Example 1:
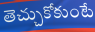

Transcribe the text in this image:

తెచ్చుకోకుంటే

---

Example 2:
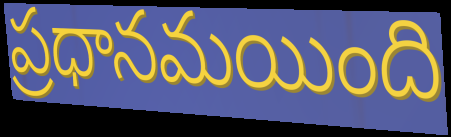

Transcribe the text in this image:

ప్రధానమయింది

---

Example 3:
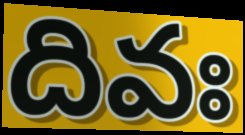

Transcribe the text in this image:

దివః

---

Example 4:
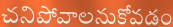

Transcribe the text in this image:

చనిపోవాలనుకోవడం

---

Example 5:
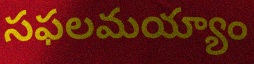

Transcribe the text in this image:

సఫలమయ్యాం